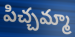
పిచ్చమ్మా